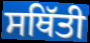
ਸਥਿੱਤੀ